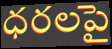
ధరలపై